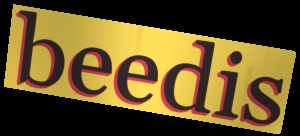
beedis